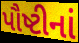
પૌષ્ટીનાં